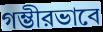
গম্ভীরভাবে